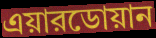
এয়ারডোয়ান